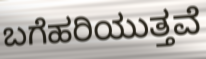
ಬಗೆಹರಿಯುತ್ತವೆ